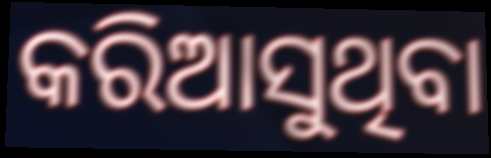
କରିଆସୁଥିବା